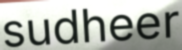
sudheer